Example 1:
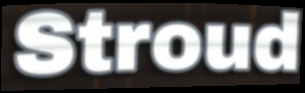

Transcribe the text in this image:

Stroud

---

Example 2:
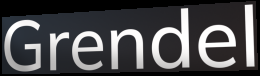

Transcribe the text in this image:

Grendel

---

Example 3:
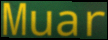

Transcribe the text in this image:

Muar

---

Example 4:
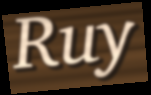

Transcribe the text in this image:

Ruy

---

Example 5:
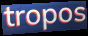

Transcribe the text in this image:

tropos